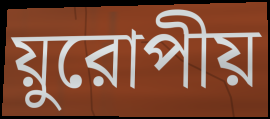
য়ুরোপীয়